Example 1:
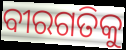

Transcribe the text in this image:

ବୀରଗତିକୁ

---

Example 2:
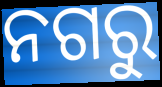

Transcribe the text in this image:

ନଗରୁ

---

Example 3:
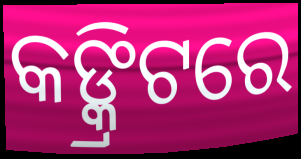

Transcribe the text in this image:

କଙ୍କ୍ରିଟରେ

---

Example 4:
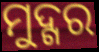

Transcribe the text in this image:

ମୁଦ୍ଗର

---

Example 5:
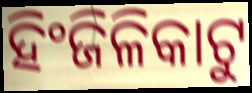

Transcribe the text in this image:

ହିଂଜିଳିକାଟୁ